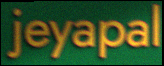
jeyapal